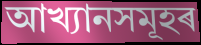
আখ্যানসমূহৰ